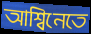
আশ্বিনেতে